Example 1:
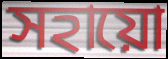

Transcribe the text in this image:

সহায়ো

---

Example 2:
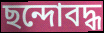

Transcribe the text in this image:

ছন্দোবদ্ধ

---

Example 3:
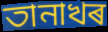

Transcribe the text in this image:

তানাখৰ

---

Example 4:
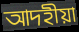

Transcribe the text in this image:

আদহীয়া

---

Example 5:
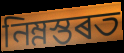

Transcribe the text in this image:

নিম্নস্তৰত